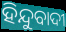
ହିନ୍ଦୁବାଦୀ